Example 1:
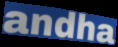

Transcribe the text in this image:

andha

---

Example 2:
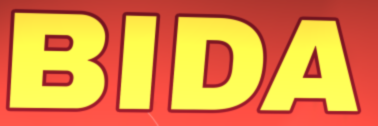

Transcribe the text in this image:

BIDA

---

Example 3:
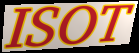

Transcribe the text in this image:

ISOT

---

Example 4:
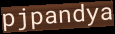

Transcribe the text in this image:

pjpandya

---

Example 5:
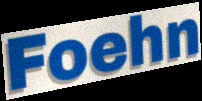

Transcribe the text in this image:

Foehn